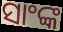
ସାଂଙ୍କ